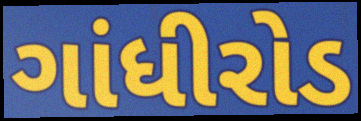
ગાંધીરોડ